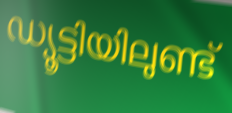
ഡ്യൂട്ടിയിലുണ്ട്